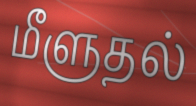
மீளுதல்